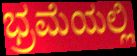
ಭ್ರಮೆಯಲ್ಲಿ